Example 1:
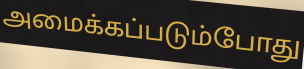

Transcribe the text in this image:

அமைக்கப்படும்போது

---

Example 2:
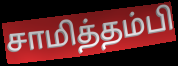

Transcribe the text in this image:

சாமித்தம்பி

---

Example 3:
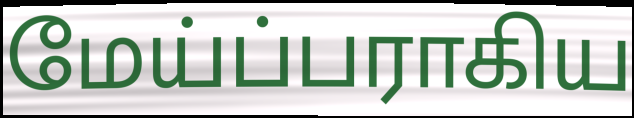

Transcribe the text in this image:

மேய்ப்பராகிய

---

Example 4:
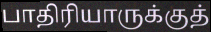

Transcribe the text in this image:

பாதிரியாருக்குத்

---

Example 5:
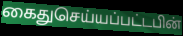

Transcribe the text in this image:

கைதுசெய்யப்பட்டபின்